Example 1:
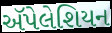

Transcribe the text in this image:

ઍપેલેશિયન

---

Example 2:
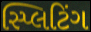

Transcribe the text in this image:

સ્પ્લિટિંગ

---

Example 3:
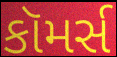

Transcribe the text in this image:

કૉમર્સ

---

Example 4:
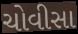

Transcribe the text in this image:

ચોવીસા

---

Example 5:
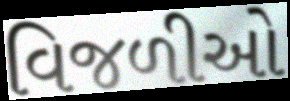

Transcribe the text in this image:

વિજળીઓ